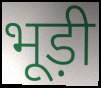
भूड़ी